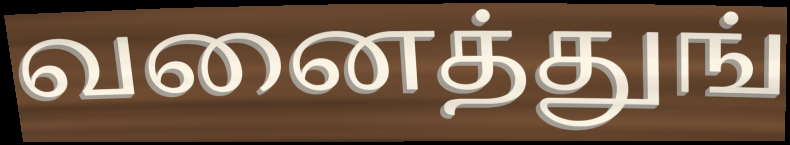
வனைத்துங்